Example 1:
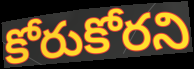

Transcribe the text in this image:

కోరుకోరని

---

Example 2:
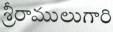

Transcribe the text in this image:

శ్రీరాములుగారి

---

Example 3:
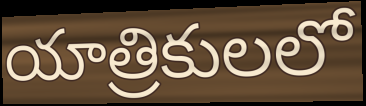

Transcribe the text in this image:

యాత్రికులలో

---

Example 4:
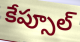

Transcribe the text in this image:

కేప్సూల్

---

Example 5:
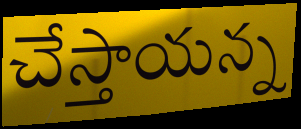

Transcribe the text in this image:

చేస్తాయన్న